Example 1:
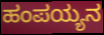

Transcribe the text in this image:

ಹಂಪಯ್ಯನ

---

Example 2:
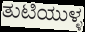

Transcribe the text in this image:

ತುಟಿಯುಳ್ಳ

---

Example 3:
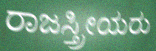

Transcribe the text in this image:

ರಾಜಸ್ತ್ರೀಯರು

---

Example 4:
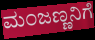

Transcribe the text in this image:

ಮಂಜಣ್ಣನಿಗೆ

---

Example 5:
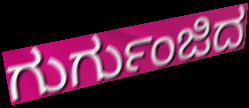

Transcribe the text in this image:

ಗುರ್ಗುಂಜಿದ